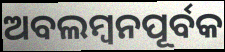
ଅବଲମ୍ୱନପୂର୍ବକ